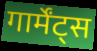
गार्मेंट्स